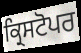
ਕ੍ਰਿਸਟੋਪਰ